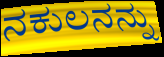
ನಕುಲನನ್ನು